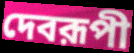
দেবরূপী